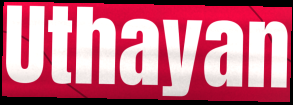
Uthayan